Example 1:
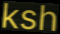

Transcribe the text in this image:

ksh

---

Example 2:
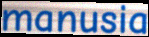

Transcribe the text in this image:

manusia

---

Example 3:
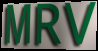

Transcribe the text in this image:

MRV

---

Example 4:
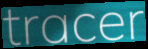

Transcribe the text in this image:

tracer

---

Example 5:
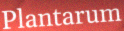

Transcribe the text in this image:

Plantarum